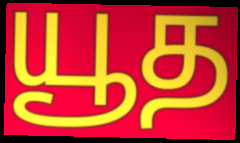
யூத